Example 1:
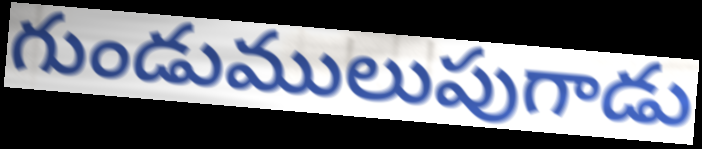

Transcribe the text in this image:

గుండుములుపుగాడు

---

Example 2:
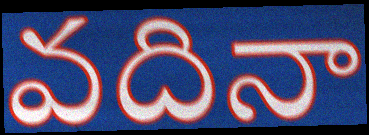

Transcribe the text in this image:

వదినా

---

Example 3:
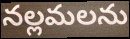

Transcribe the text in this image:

నల్లమలను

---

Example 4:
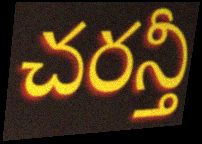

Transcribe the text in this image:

చరన్తీ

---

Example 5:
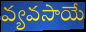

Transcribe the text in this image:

వ్యవసాయే